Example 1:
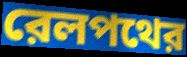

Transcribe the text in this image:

রেলপথের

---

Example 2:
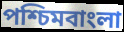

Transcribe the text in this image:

পশ্চিমবাংলা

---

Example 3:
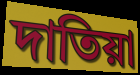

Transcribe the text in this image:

দাতিয়া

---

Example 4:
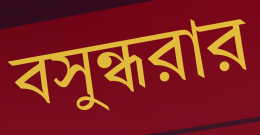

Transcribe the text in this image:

বসুন্ধরার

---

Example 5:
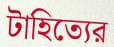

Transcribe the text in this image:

টাহিত্যের